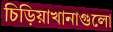
চিড়িয়াখানাগুলো